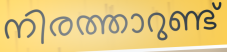
നിരത്താറുണ്ട്